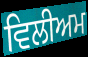
ਵਿਲੀਅਮ